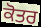
ਕੋਤਰ